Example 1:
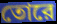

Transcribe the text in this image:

তোরে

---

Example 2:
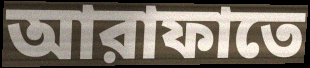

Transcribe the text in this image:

আরাফাতে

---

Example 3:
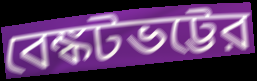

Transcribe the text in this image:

বেঙ্কটভট্টের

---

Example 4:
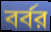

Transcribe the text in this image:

বর্বর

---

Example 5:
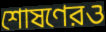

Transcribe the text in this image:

শোষণেরও